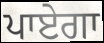
ਪਾਏਗਾ